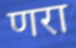
णरा